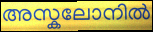
അസ്കലോനിൽ